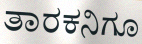
ತಾರಕನಿಗೂ